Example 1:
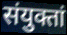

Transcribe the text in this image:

संयुक्तां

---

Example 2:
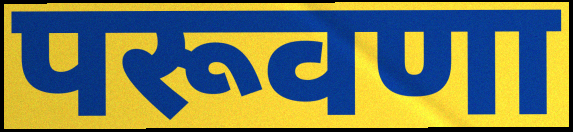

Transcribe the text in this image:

परूवणा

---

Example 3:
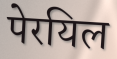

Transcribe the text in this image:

पेरयिल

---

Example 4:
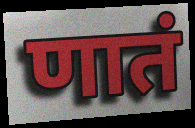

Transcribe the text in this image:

णातं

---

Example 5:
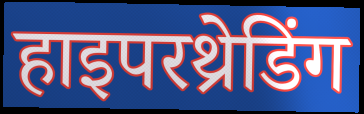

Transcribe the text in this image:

हाइपरथ्रेडिंग